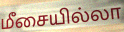
மீசையில்லா